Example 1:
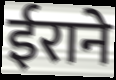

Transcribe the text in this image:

ईराने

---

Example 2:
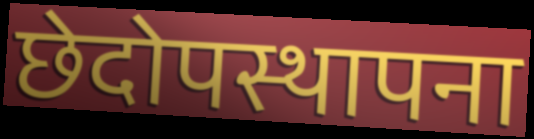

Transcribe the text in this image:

छेदोपस्थापना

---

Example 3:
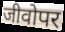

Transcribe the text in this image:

जीवोपर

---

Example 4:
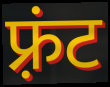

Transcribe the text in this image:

फ़्रंट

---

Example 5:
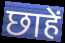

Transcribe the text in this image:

छाहें